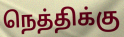
நெத்திக்கு